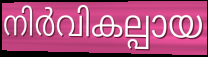
നിർവികല്പായ